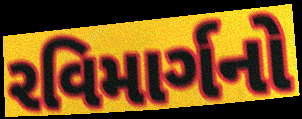
રવિમાર્ગનો